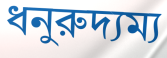
ধনুরুদ্যম্য